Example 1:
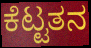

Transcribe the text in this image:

ಕೆಟ್ಟತನ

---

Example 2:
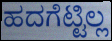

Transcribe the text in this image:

ಹದಗೆಟ್ಟಿಲ್ಲ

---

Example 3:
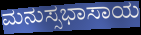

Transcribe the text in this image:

ಮನುಸ್ಸಭಾಸಾಯ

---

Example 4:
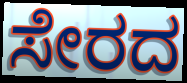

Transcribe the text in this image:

ಸೇರದ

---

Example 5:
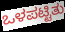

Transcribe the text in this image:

ಒಳಪಟ್ಟಿತು